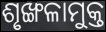
ଶୃଙ୍ଖଳାମୁକ୍ତ